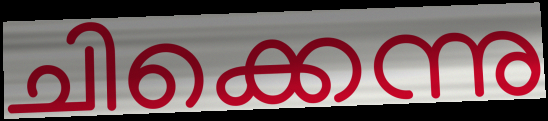
ചിക്കെന്നു